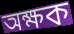
অক্ষক